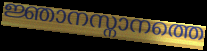
ജ്ഞാനസ്നാനത്തെ